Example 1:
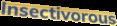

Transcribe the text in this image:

Insectivorous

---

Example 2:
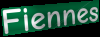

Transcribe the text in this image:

Fiennes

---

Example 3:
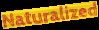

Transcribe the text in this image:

Naturalized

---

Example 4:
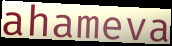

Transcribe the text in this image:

ahameva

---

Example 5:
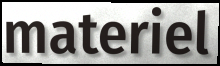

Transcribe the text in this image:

materiel